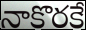
నాకొరకే